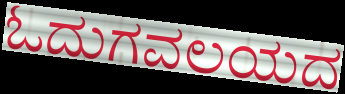
ಓದುಗವಲಯದ